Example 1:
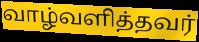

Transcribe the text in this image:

வாழ்வளித்தவர்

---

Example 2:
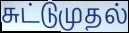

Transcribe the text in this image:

சுட்டுமுதல்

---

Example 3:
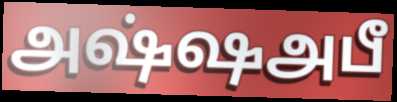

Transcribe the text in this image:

அஷ்ஷஅபீ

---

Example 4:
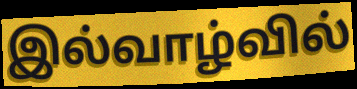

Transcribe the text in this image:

இல்வாழ்வில்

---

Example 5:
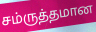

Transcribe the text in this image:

சம்ருத்தமான